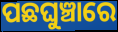
ପଛଘୁଞ୍ଚାରେ